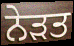
ਨੇੜਤ